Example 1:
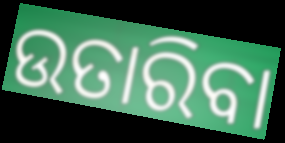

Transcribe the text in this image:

ଉତାରିବା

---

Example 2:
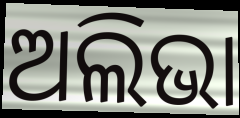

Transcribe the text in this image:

ଅଲିଭା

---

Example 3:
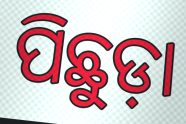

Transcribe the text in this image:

ପିଛୁଡ଼ା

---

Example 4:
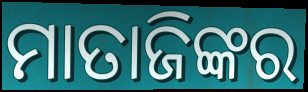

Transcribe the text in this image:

ମାତାଜିଙ୍କର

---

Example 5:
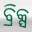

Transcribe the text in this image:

ବ୍ରିକ୍ସ